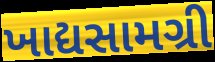
ખાદ્યસામગ્રી